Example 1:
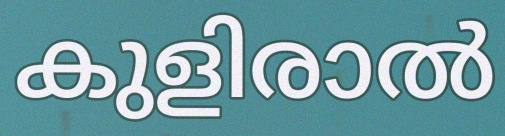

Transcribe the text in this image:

കുളിരാൽ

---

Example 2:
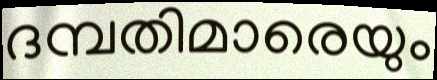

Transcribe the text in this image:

ദമ്പതിമാരെയും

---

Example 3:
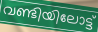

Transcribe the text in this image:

വണ്ടിയിലോട്ട്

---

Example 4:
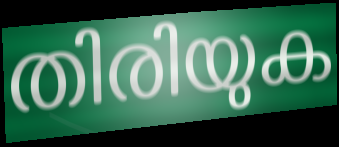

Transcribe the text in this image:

തിരിയുക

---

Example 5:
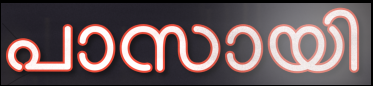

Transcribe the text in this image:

പാസായി